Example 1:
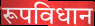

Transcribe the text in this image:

रूपविधान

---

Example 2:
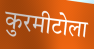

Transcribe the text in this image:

कुरमीटोला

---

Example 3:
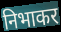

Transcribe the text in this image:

निभाकर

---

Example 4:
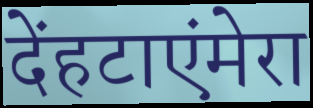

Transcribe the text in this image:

देंहटाएंमेरा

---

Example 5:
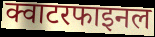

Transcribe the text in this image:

क्वाटरफाइनल